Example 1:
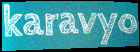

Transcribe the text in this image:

karavyo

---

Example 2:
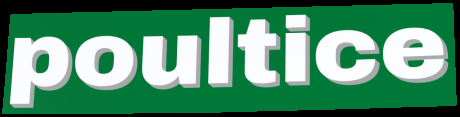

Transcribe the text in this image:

poultice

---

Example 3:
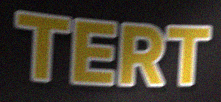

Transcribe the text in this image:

TERT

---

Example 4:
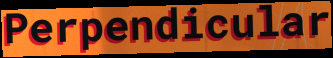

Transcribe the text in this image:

Perpendicular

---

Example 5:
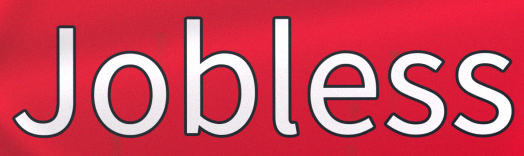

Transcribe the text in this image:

Jobless